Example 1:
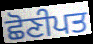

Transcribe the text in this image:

ਛੋਣੀਪਤ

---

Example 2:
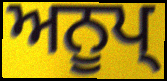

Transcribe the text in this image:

ਅਨੂਪ੍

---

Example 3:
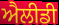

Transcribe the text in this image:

ਐਲੀਡੀ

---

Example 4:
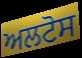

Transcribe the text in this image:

ਅਲਟੋਸ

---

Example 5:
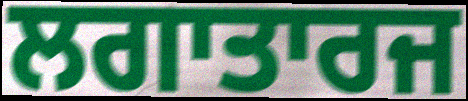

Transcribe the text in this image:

ਲਗਾਤਾਰਜ